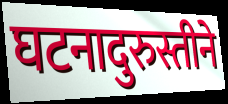
घटनादुरुस्तीने